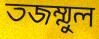
তজম্মুল